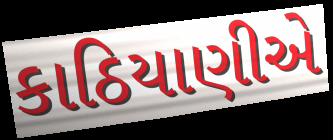
કાઠિયાણીએ